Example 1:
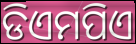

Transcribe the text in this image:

ଡିଏମପିଏ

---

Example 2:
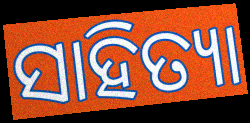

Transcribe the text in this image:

ସାହିତ୍ୟା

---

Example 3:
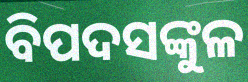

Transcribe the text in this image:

ବିପଦସଙ୍କୁଳ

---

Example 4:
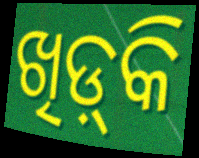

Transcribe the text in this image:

ଖିଡ଼୍‌କି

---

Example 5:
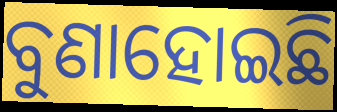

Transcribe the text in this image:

ବୁଣାହୋଇଛି